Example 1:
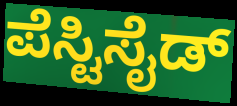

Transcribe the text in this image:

ಪೆಸ್ಟಿಸೈಡ್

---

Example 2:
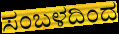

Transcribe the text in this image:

ಸಂಬಳದಿಂದ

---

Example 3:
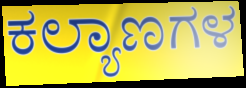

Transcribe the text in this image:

ಕಲ್ಯಾಣಗಳ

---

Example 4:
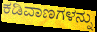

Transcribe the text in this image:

ಕಡಿವಾಣಗಳನ್ನು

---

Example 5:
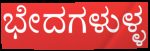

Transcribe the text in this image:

ಭೇದಗಳುಳ್ಳ